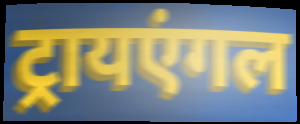
ट्रायएंगल